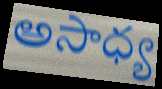
అసాధ్య